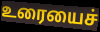
உரையைச்